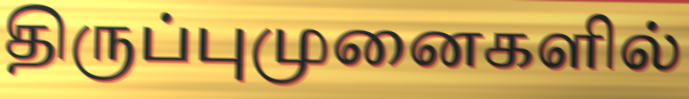
திருப்புமுனைகளில்